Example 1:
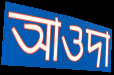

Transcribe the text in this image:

আওদা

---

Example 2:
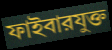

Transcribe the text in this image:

ফাইবারযুক্ত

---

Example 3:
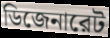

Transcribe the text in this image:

ডিজেনারেট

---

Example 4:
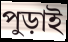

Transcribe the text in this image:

পুড়াই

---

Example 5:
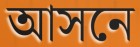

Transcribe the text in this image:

আসনে